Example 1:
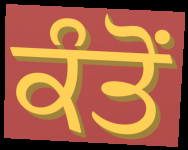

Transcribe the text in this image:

ਕੰਤੋਂ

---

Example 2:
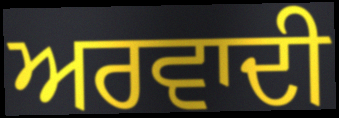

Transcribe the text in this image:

ਅਰਵਾਦੀ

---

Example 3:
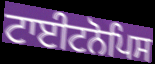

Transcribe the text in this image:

ਟਾਈਟਨੋਪਿਸ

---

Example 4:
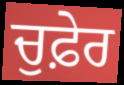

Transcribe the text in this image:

ਚੁਫ਼ੇਰ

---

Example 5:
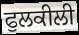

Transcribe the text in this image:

ਫੁਲਕੀਲੀ